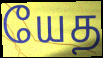
யேத